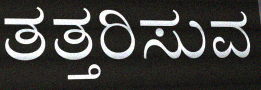
ತತ್ತರಿಸುವ